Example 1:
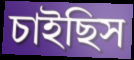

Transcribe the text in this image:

চাইছিস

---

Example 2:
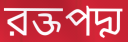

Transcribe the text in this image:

রক্তপদ্ম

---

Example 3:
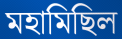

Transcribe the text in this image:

মহামিছিল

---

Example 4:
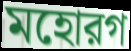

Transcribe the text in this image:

মহোরগ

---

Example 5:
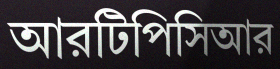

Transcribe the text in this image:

আরটিপিসিআর